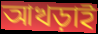
আখড়াই